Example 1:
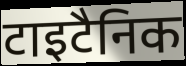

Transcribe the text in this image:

टाइटैनिक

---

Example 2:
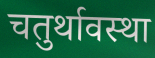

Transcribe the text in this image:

चतुर्थावस्था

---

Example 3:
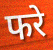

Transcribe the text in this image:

फरे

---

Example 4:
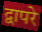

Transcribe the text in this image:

द्वापरे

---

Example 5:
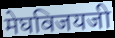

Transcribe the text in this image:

मेघविजयजी